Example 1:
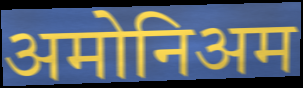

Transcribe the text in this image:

अमोनिअम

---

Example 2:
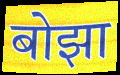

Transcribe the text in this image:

बोझा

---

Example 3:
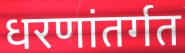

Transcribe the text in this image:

धरणांतर्गत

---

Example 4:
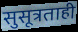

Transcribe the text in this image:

सुसूत्रताही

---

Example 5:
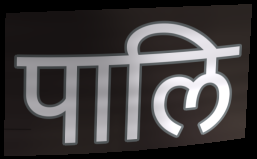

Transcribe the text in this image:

पालि